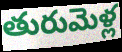
తురుమెళ్ల